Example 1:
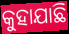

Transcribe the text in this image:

କୁହାଯାଛି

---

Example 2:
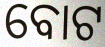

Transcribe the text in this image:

ବୋଟ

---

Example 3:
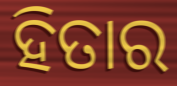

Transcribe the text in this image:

ହିତାର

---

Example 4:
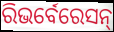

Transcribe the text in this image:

ରିଭର୍ବେରେସନ୍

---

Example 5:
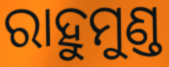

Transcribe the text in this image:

ରାହୁମୁଣ୍ଡ